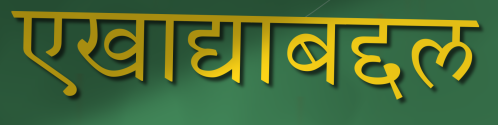
एखाद्याबद्दल